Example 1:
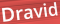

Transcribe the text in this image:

Dravid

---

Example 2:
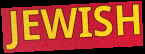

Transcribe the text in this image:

JEWISH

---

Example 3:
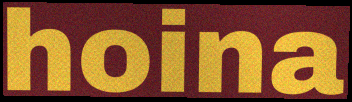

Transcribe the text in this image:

hoina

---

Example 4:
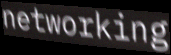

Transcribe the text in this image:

networking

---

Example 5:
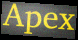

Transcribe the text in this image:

Apex